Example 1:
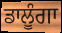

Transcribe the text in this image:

ਡਾਲੂੰਗਾ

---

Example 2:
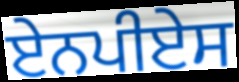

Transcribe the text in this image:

ਏਨਪੀਏਸ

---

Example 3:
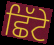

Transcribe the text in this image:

ਛਿੱਟੇ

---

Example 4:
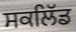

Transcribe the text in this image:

ਸਕਲਿੱਡ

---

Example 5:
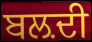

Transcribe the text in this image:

ਬਲ਼ਦੀ